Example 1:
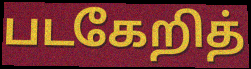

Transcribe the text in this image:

படகேறித்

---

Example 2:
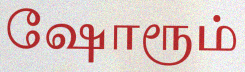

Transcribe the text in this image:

ஷோரூம்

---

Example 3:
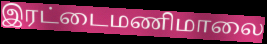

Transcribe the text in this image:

இரட்டைமணிமாலை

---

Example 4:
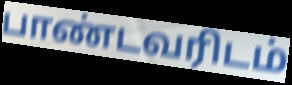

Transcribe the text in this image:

பாண்டவரிடம்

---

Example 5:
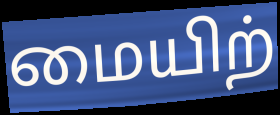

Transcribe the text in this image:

மையிற்